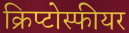
क्रिप्टोस्फीयर